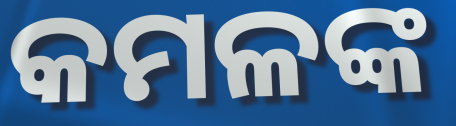
କମଳଙ୍କ